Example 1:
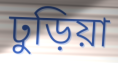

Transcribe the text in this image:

ঢুড়িয়া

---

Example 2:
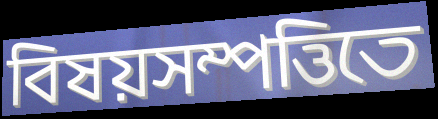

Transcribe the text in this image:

বিষয়সম্পত্তিতে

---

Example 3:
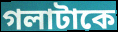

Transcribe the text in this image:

গলাটাকে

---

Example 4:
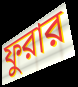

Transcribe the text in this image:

ফুরার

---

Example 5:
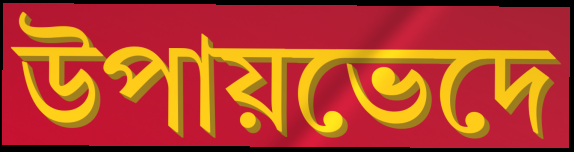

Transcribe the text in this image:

উপায়ভেদে